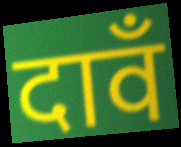
दावँ